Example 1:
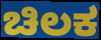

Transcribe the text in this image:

ಚಿಲಕ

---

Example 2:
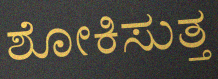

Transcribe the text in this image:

ಶೋಕಿಸುತ್ತ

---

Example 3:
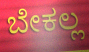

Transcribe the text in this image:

ಬೇಕಲ್ಲ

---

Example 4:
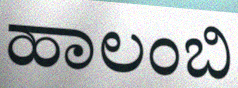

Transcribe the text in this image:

ಹಾಲಂಬಿ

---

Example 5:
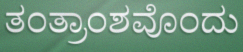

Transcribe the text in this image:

ತಂತ್ರಾಂಶವೊಂದು